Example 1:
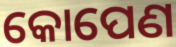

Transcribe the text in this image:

କୋପେଣ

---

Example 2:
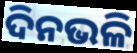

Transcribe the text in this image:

ଦିନଭଳି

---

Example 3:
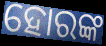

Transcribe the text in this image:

ହୋରଙ୍କ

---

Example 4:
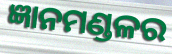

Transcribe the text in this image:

ଜ୍ଞାନମଣ୍ଡଳର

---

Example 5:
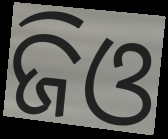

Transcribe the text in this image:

ଜିଓ